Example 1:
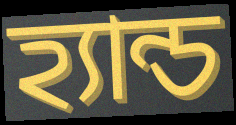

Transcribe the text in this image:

হ্যান্ড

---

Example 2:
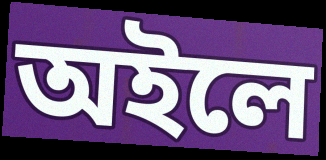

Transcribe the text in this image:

অইলে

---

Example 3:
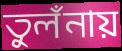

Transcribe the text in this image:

তুলঁনায়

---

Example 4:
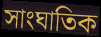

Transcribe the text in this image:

সাংঘাতিক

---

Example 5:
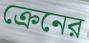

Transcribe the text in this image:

ক্রেনের